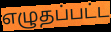
எழுதப்பட்ட